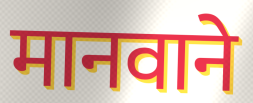
मानवाने